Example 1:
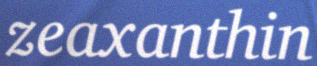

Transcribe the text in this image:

zeaxanthin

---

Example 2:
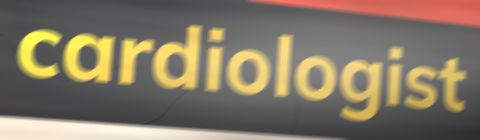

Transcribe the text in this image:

cardiologist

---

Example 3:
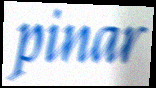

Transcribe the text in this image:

pinar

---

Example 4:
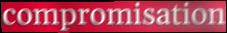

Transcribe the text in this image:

compromisation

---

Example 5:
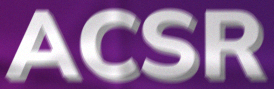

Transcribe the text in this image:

ACSR